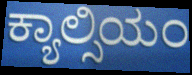
ಕ್ಯಾಲ್ಸಿಯಂ